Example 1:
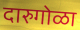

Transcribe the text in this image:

दारुगोळा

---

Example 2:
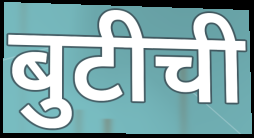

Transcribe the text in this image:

बुटीची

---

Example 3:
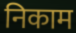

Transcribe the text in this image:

निकाम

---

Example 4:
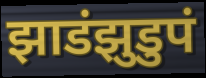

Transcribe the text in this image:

झाडंझुडुपं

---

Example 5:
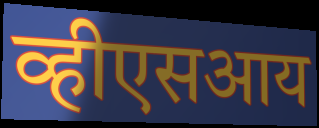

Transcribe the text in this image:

व्हीएसआय